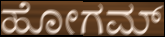
ಹೋಗಮ್